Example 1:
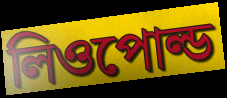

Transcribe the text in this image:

লিওপোল্ড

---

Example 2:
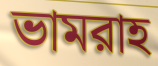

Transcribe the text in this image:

ভামরাহ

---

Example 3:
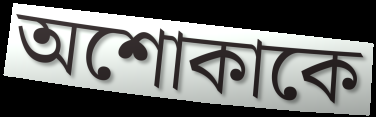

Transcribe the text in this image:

অশোকাকে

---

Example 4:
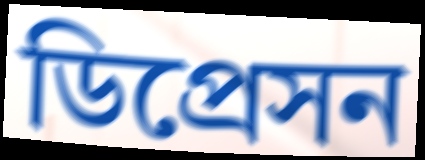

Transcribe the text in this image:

ডিপ্রেসন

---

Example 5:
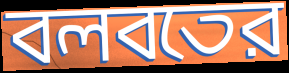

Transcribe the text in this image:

বলবতের